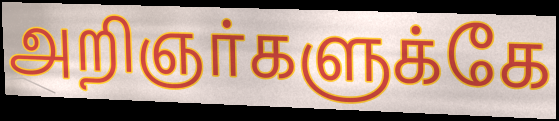
அறிஞர்களுக்கே